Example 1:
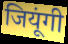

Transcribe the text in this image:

जियूंगी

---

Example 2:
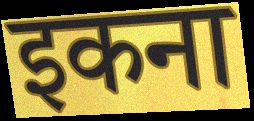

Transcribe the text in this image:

इकना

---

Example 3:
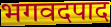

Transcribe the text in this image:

भगवदपाद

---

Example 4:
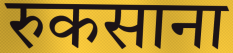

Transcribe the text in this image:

रुकसाना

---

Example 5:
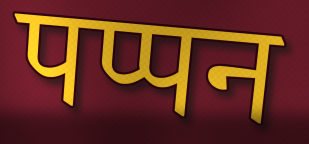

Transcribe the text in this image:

पप्पन